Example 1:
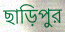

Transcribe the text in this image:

ছাড়িপুর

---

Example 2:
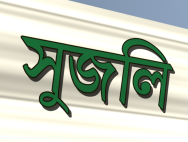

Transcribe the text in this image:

সুজলি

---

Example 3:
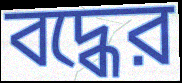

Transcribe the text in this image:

বদ্ধের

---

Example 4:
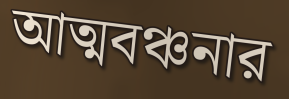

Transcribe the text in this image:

আত্মবঞ্চনার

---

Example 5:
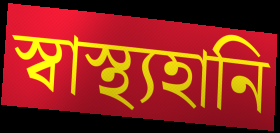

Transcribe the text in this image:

স্বাস্থ্যহানি